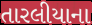
તારલીયાના